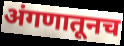
अंगणातूनच